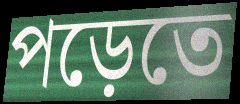
পড়েতে